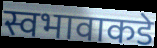
स्वभावाकडे